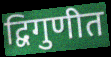
द्विगुणीत